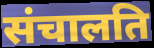
संचालति